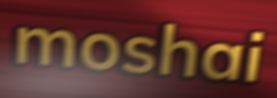
moshai